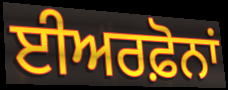
ਈਅਰਫ਼ੋਨਾਂ